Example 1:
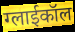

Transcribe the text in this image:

ग्लाईकॉल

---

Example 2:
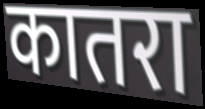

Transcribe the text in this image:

कातरा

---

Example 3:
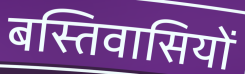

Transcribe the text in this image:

बस्तिवासियों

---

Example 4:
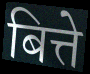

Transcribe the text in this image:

बित्ते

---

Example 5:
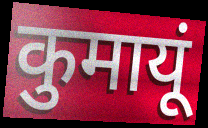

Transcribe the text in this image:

कुमायूं